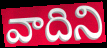
వాదిని